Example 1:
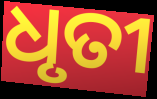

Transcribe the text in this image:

ଧୃତୀ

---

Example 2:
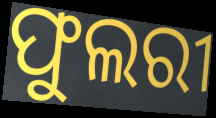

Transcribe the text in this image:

ଫୁଲରୀ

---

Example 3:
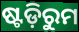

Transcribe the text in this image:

ଷ୍ଟଡ଼ିରୁମ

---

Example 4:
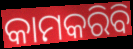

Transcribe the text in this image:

କାମକରିବି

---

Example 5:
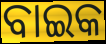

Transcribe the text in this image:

ବାଇକ